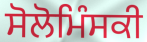
ਸੋਲੋਮਿੰਸਕੀ